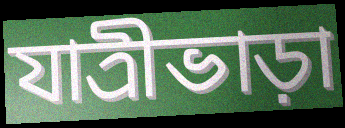
যাত্রীভাড়া